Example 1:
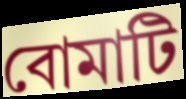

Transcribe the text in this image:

বোমাটি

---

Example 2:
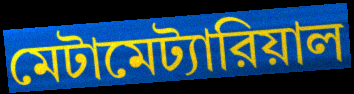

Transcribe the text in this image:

মেটামেট্যারিয়াল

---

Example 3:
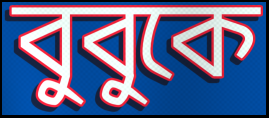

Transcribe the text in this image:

বুবুকে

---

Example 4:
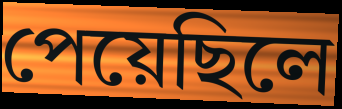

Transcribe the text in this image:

পেয়েছিলে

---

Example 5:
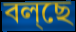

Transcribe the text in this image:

বল্ছে